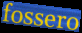
fossero